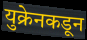
युक्रेनकडून